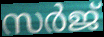
സർജ്